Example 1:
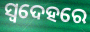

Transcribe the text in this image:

ସ୍ଵଦେହରେ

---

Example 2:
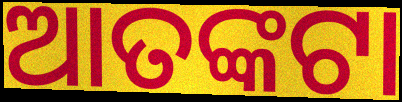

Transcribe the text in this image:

ଆତଙ୍କଟା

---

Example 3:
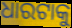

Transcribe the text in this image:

ଧାରଟାକୁ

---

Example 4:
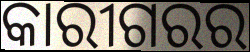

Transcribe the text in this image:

କାରୀଗରର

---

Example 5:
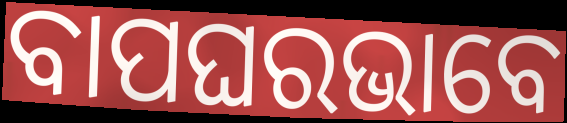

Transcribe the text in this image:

ବାପଘରଭାବେ